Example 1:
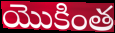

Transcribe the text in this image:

యొకింత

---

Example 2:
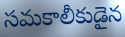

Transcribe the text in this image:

సమకాలీకుడైన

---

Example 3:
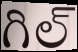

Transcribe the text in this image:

గిల్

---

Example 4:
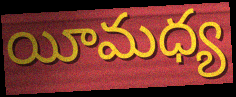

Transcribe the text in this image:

యీమధ్య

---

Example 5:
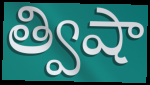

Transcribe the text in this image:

త్విషా